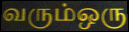
வரும்ஒரு